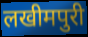
लखीमपुरी